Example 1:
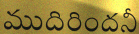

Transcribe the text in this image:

ముదిరిందనీ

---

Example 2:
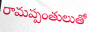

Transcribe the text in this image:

రామప్పంతులుతో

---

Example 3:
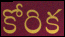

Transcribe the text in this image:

కోరిక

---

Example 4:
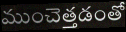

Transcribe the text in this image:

ముంచెత్తడంతో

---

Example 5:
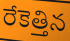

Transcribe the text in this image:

రేకెత్తిన